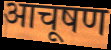
आचूषण